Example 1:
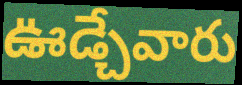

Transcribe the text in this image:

ఊడ్చేవారు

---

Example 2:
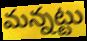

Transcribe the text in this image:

మన్నట్టు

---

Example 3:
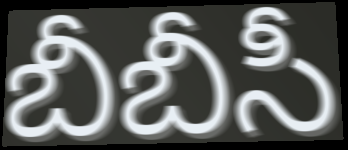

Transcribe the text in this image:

బీబీసీ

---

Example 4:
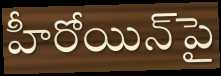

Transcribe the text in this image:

హీరోయిన్‌పై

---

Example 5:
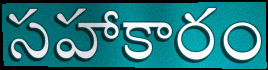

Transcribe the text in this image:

సహాకారం